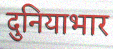
दुनियाभार